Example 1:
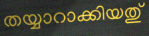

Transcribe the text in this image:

തയ്യാറാക്കിയതു്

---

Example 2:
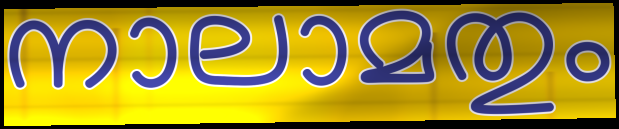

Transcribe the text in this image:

നാലാമതും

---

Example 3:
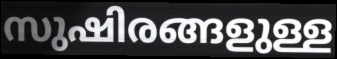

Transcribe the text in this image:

സുഷിരങ്ങളുള്ള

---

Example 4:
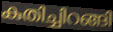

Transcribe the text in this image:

കുതിച്ചിറങ്ങി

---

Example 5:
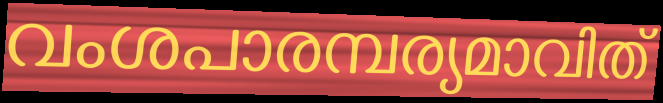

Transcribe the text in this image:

വംശപാരമ്പര്യമാവിത്